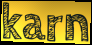
karn